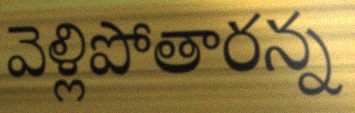
వెళ్లిపోతారన్న